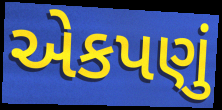
એકપણું